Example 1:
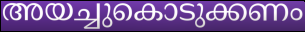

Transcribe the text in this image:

അയച്ചുകൊടുക്കണം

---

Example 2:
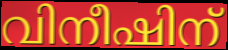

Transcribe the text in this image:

വിനീഷിന്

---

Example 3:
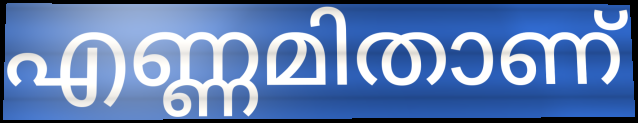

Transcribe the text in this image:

എണ്ണമിതാണ്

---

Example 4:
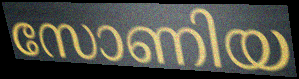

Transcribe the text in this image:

സോണിയ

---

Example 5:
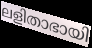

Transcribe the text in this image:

ലളിതാഭായി